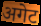
अगेट